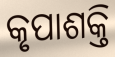
କୃପାଶକ୍ତି